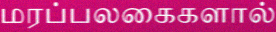
மரப்பலகைகளால்